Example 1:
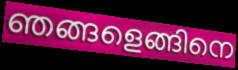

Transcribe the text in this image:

ഞങ്ങളെങ്ങിനെ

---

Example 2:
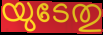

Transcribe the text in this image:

യുടേതു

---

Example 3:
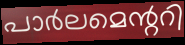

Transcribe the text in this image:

പാർലമെന്ററി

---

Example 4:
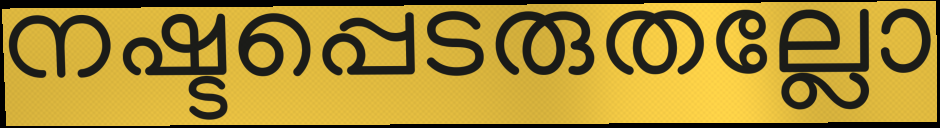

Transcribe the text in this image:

നഷ്ടപ്പെടരുതല്ലോ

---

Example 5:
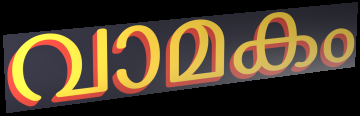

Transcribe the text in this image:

വാമകം